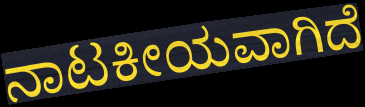
ನಾಟಕೀಯವಾಗಿದೆ